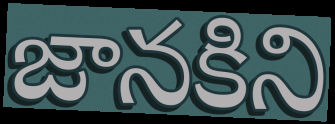
జానకిని